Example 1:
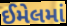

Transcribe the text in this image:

ઈમેલમાં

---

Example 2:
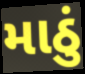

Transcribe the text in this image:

માઠું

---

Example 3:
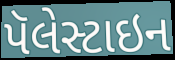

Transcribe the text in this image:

પૅલેસ્ટાઇન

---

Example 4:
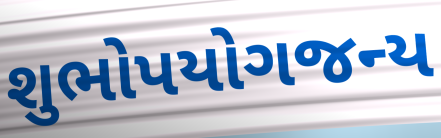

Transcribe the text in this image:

શુભોપયોગજન્ય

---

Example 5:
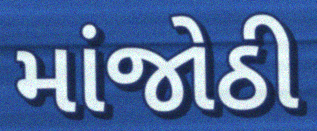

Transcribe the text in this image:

માંજોઠી